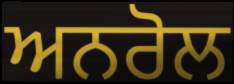
ਅਨਰੋਲ